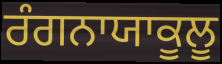
ਰੰਗਨਾਯਾਕੂਲੂ